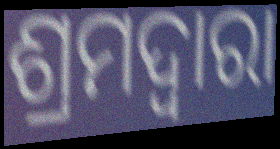
ଶ୍ରମଦ୍ଵାରା